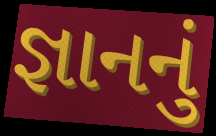
જ્ઞાનનું